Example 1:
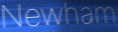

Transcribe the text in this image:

Newham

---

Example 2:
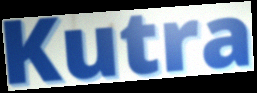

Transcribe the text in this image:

Kutra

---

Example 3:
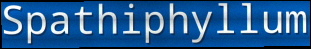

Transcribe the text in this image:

Spathiphyllum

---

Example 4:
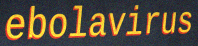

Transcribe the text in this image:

ebolavirus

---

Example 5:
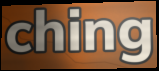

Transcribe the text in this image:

ching